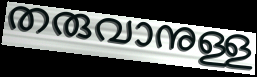
തരുവാനുള്ള